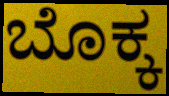
ಬೊಕ್ಕ